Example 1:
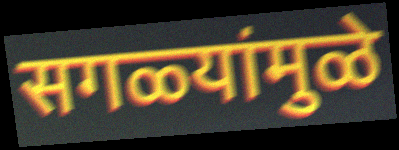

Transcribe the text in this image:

सगळ्यांमुळे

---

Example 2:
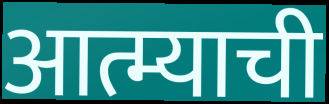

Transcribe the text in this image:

आत्म्याची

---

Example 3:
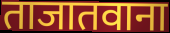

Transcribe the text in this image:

ताजातवाना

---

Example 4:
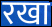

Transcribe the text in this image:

रखा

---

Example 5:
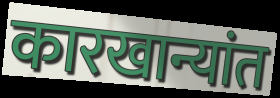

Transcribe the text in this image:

कारखान्यांत